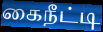
கைநீட்டி